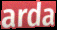
arda